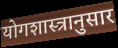
योगशास्त्रानुसार